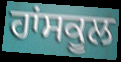
ਹਾਂਸਕੂਲ